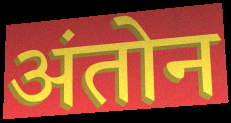
अंतोन